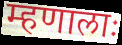
म्हणालाः